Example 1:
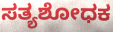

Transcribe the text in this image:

ಸತ್ಯಶೋಧಕ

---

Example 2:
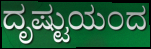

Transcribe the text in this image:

ದೃಷ್ಟುಯಂದ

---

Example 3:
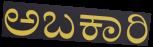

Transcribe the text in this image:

ಅಬಕಾರಿ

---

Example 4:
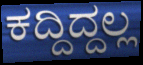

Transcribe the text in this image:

ಕದ್ದಿದ್ದಲ್ಲ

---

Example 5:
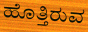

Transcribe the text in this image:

ಹೊತ್ತಿರುವ